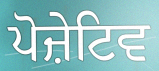
ਪੋਜ਼ੇਟਿਵ